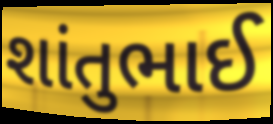
શાંતુભાઈ